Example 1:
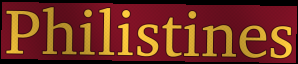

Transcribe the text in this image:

Philistines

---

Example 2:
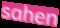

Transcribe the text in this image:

sahen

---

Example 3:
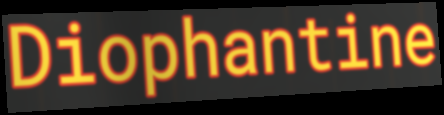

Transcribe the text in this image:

Diophantine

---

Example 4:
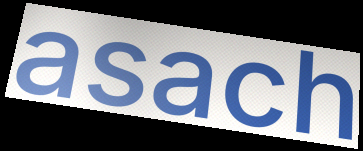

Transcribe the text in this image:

asach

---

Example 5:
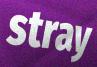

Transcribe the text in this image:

stray